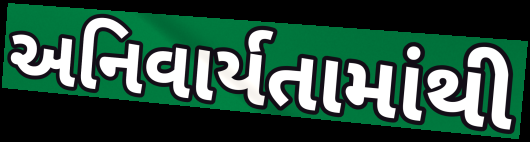
અનિવાર્યતામાંથી